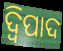
ଦ୍ୱିପାଦ